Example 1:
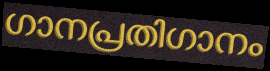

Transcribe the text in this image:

ഗാനപ്രതിഗാനം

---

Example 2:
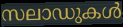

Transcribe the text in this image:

സലാഡുകൾ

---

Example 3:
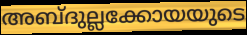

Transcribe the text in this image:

അബ്ദുല്ലക്കോയയുടെ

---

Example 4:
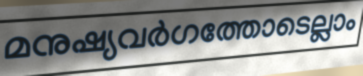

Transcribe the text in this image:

മനുഷ്യവർഗത്തോടെല്ലാം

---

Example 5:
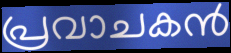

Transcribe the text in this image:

പ്രവാചകൻ